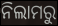
ନିଲାମରୁ